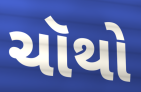
ચૉથો